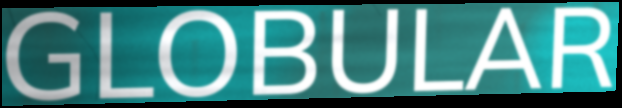
GLOBULAR